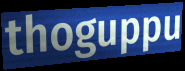
thoguppu